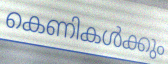
കെണികൾക്കും